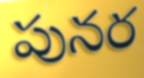
పునర